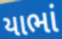
યાભાં